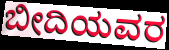
ಬೀದಿಯವರ